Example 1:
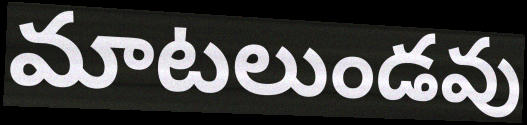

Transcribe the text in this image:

మాటలుండవు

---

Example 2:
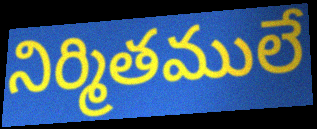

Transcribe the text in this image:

నిర్మితములే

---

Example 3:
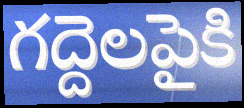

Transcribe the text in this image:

గద్దెలపైకి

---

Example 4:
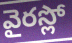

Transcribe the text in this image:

వైరస్లో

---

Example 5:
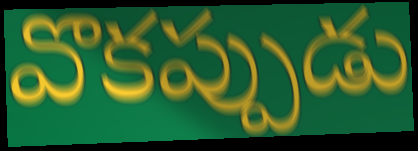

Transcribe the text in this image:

వొకప్పుడు